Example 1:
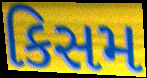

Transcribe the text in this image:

કિસમ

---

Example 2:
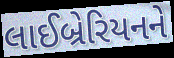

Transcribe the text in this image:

લાઈબ્રેરિયનને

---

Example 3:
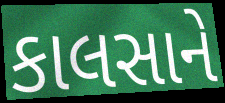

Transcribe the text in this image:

કાલસાને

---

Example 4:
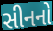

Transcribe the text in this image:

સીનનો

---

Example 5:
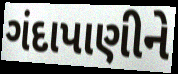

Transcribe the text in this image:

ગંદાપાણીને